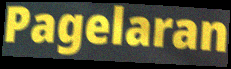
Pagelaran